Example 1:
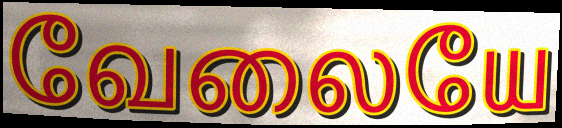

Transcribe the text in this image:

வேலையே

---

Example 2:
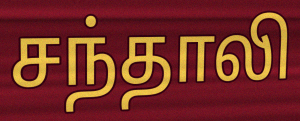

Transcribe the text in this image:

சந்தாலி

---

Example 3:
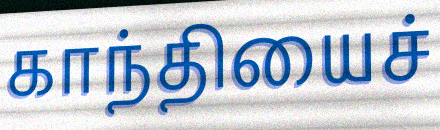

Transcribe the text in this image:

காந்தியைச்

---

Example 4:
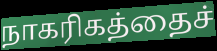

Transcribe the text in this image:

நாகரிகத்தைச்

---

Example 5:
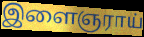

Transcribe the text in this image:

இளைஞராய்